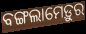
ବଙ୍ଗଲାମେଡ଼ୁର